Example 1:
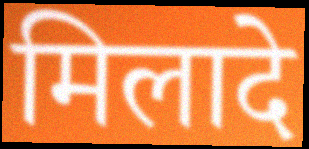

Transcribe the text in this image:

मिलादे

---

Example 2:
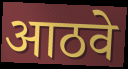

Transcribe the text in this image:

आठवे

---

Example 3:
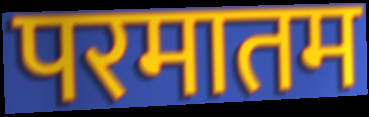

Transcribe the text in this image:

परमातम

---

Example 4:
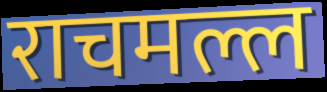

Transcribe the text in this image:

राचमल्ल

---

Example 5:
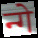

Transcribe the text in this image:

न्गे